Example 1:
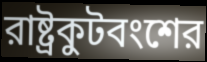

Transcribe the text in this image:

রাষ্ট্রকুটবংশের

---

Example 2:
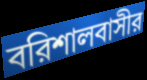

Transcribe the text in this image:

বরিশালবাসীর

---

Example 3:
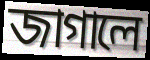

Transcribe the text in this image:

জাগালে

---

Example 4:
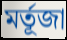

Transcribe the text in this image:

মর্তূজা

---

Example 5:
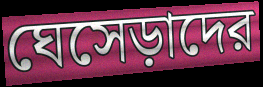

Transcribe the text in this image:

ঘেসেড়াদের